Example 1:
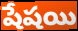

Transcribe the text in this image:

షేషయి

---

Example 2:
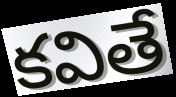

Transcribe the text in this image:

కవితే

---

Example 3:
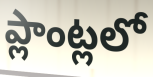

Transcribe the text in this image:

ప్లాంట్లలో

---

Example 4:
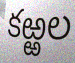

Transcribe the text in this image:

కఱ్ఱల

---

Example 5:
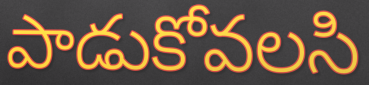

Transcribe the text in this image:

పాడుకోవలసి